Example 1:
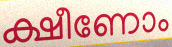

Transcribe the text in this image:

ക്ഷീണോം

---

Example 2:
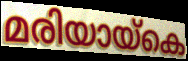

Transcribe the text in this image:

മരിയായ്കെ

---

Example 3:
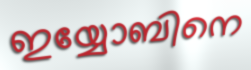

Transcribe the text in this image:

ഇയ്യോബിനെ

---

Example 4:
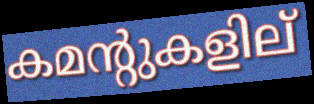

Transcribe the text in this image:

കമന്റുകളില്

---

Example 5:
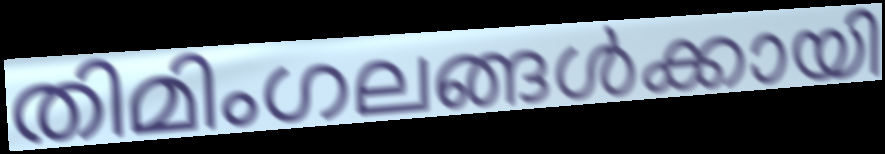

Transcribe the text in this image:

തിമിംഗലങ്ങൾക്കായി